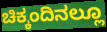
ಚಿಕ್ಕಂದಿನಲ್ಲೂ